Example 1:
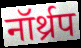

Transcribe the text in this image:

नॉर्थ्रप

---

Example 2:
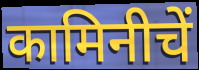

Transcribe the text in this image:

कामिनीचें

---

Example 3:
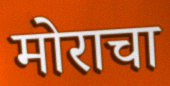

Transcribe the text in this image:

मोराचा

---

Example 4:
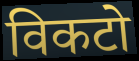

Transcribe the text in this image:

विकटो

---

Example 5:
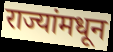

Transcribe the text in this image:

राज्यांमधून